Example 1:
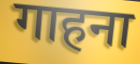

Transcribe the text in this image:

गाहना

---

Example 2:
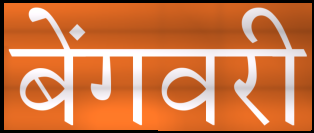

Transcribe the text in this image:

बेंगवरी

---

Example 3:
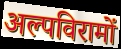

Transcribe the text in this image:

अल्पविरामों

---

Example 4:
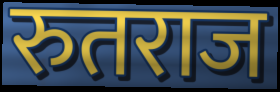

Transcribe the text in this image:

रुतराज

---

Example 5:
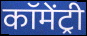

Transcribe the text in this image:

कॉमेंट्री